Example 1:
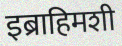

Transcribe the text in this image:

इब्राहिमशी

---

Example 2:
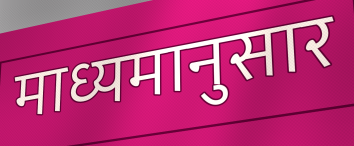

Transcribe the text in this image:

माध्यमानुसार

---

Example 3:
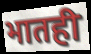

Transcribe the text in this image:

भातही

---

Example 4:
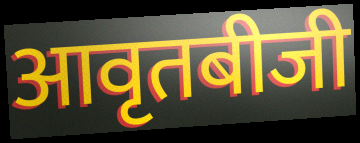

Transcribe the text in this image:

आवृतबीजी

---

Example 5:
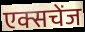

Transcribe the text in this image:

एक्सचेंज